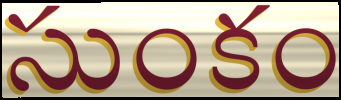
సుంకం